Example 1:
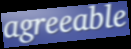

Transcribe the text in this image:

agreeable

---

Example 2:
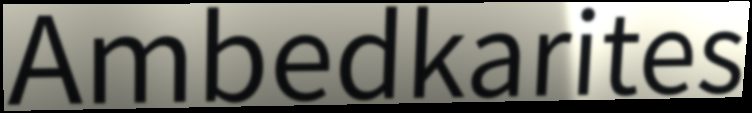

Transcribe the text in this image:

Ambedkarites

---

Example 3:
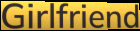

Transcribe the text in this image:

Girlfriend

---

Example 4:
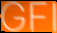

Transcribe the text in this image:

GFI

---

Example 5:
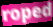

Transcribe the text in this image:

roped